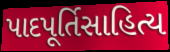
પાદપૂર્તિસાહિત્ય